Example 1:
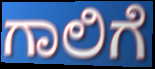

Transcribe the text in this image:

ಗಾಲಿಗೆ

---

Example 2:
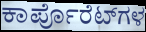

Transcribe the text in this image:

ಕಾರ್ಪೊರೆಟ್‌ಗಳ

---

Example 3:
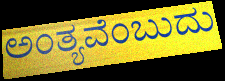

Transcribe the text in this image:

ಅಂತ್ಯವೆಂಬುದು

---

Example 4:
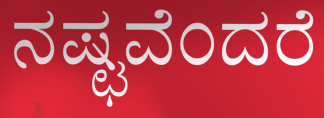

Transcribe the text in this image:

ನಷ್ಟವೆಂದರೆ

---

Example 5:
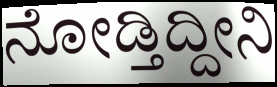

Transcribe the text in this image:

ನೋಡ್ತಿದ್ದೀನಿ